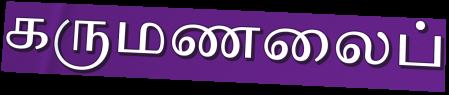
கருமணலைப்